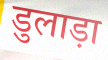
डुलाड़ा